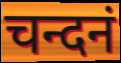
चन्दनं